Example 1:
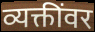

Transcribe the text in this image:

व्यक्तींवर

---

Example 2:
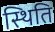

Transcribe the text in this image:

स्थिति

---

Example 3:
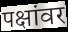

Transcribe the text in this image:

पक्षांवर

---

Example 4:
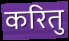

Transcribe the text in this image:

करितु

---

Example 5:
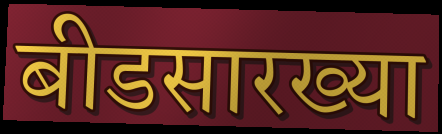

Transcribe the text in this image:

बीडसारख्या